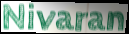
Nivaran